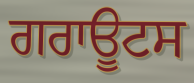
ਗਰਾਊਟਸ